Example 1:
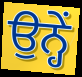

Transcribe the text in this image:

ਉਨ੍ਹੇਂ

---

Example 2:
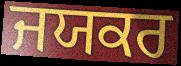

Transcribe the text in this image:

ਜਯਕਰ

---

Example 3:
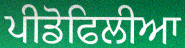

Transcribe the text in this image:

ਪੀਡੋਫਿਲੀਆ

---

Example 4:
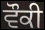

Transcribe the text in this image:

ਵੌਕੀ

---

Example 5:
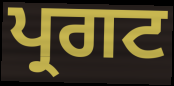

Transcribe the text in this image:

ਪ੍ਰਗਟ